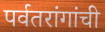
पर्वतरांगांची